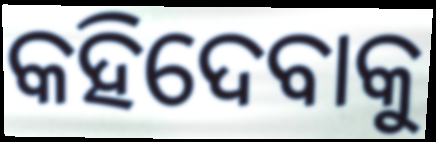
କହିଦେବାକୁ